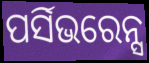
ପର୍ସିଭରେନ୍ସ